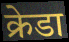
क्रेडा